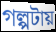
গল্পটায়